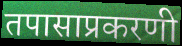
तपासाप्रकरणी